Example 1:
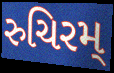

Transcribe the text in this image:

રુચિરમ્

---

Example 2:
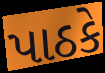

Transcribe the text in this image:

પાઠકે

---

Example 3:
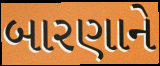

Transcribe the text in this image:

બારણાને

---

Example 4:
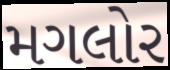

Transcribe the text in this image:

મગલોર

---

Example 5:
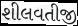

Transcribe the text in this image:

શીલવતીજી